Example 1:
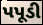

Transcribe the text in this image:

પપૂડી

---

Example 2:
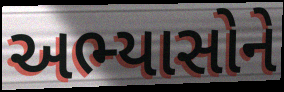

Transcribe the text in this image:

અભ્યાસોને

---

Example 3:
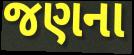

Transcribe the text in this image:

જણના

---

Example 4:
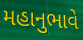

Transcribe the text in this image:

મહાનુભાવે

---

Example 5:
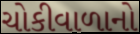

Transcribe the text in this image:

ચોકીવાળાનો